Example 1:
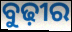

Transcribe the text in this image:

ବୁଢ଼ୀର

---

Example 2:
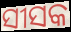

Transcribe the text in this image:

ସୀସକ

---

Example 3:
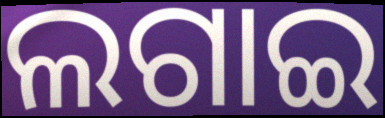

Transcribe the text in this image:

ଲଗାଇ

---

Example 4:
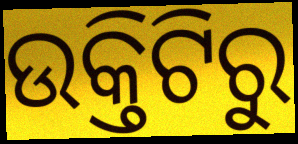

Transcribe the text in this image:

ଉକ୍ତିଟିରୁ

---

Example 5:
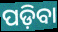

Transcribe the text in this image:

ପଡ଼ିବା